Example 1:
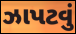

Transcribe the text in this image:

ઝાપટવું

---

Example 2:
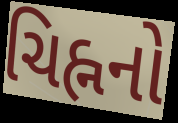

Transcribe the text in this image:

ચિહ્નનો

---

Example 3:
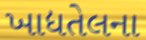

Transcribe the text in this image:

ખાદ્યતેલના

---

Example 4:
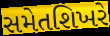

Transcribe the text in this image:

સમેતશિખરે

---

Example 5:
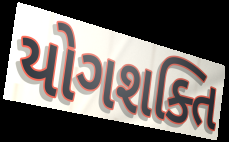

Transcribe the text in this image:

યોગશક્તિ